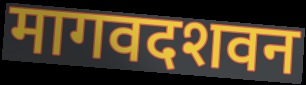
मागवदशवन